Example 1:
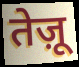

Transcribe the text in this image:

तेज़ू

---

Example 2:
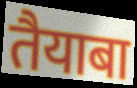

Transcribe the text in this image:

तैयाबा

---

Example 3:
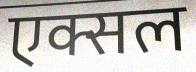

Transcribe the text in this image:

एक्सल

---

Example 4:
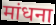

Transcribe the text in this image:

मांधना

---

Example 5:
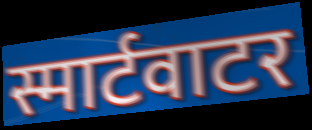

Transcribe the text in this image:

स्मार्टवाटर